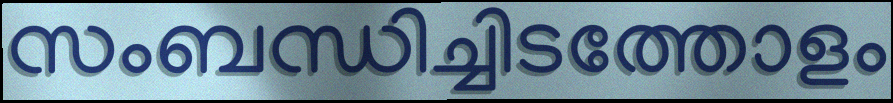
സംബന്ധിച്ചിടത്തോളം